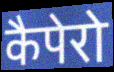
कैपेरो